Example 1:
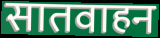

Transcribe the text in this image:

सातवाहन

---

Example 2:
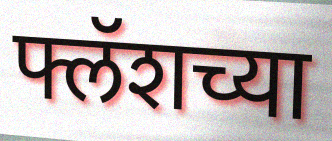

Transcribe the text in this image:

फ्लॅशच्या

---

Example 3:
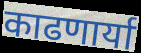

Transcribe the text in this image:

काढणार्या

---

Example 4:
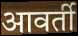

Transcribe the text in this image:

आवर्ती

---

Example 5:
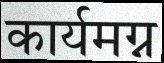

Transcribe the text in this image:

कार्यमग्न